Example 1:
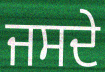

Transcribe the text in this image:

ਜਸਦੇ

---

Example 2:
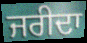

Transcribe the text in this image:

ਜਰੀਦਾ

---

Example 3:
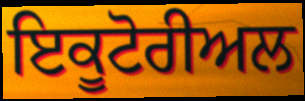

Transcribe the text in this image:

ਇਕੂਟੋਰੀਅਲ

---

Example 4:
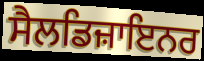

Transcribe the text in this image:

ਸੈਲਡਿਜ਼ਾਇਨਰ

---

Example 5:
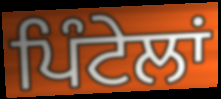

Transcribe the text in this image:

ਪਿੰਟੇਲਾਂ